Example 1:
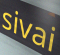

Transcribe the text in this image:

sivai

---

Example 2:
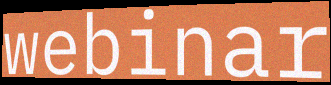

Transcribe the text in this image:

webinar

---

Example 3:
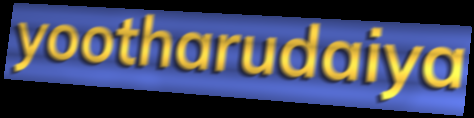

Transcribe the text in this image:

yootharudaiya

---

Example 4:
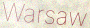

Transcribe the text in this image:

Warsaw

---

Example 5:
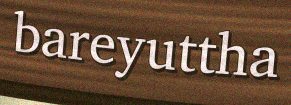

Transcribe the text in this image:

bareyuttha